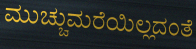
ಮುಚ್ಚುಮರೆಯಿಲ್ಲದಂತೆ